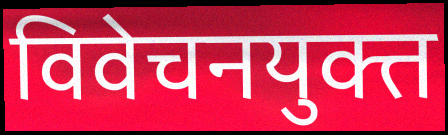
विवेचनयुक्त